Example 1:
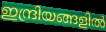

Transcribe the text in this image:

ഇന്ദ്രിയങ്ങളിൽ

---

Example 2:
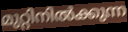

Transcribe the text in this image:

മുറ്റിനിൽക്കുന്ന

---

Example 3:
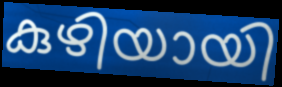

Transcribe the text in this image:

കുഴിയായി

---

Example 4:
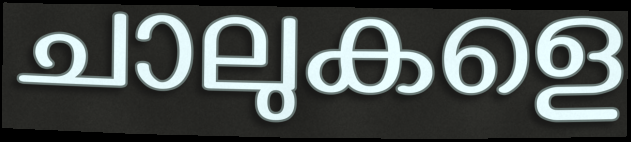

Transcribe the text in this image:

ചാലുകളെ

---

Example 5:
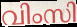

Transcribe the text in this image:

വിംസി